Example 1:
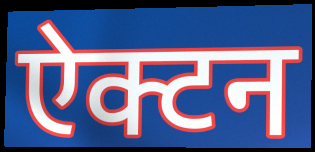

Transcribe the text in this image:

ऐक्टन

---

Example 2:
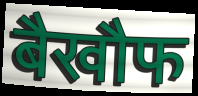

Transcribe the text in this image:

बैखौफ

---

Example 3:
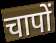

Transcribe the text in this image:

चापों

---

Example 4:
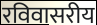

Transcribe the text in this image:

रविवासरीय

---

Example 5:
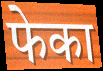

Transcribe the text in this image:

फेका